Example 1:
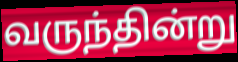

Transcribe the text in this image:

வருந்தின்று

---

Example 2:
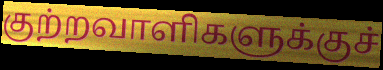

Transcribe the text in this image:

குற்றவாளிகளுக்குச்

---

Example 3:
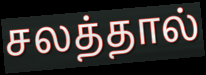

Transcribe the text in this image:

சலத்தால்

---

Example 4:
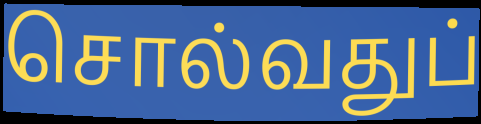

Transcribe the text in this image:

சொல்வதுப்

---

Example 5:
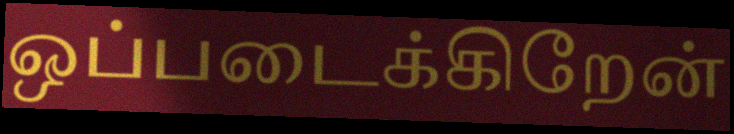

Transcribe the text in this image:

ஒப்படைக்கிறேன்